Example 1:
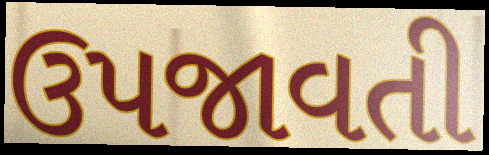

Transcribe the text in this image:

ઉપજાવતી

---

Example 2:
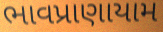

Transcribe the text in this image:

ભાવપ્રાણાયામ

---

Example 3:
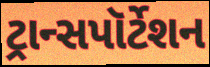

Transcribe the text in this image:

ટ્રાન્સપૉર્ટેશન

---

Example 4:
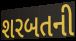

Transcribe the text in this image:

શરબતની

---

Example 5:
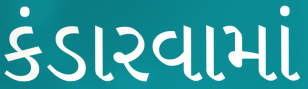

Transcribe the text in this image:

કંડારવામાં